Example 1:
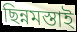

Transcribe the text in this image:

ছিন্নমস্তাই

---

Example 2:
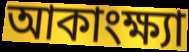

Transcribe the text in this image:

আকাংক্ষ্যা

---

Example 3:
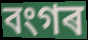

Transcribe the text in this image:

বংগৰ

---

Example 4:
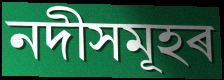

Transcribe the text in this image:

নদীসমূহৰ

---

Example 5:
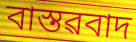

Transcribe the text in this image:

বাস্তৱবাদ